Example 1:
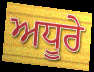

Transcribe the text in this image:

ਅਧੂਰੇ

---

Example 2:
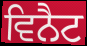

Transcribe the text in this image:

ਵਿਨੈਟ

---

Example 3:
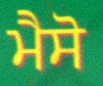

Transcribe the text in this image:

ਮੈਸੋ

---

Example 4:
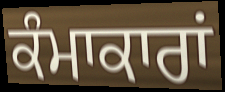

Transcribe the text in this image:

ਕੰਮਾਕਾਰਾਂ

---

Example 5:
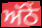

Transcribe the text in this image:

ਅੱਠੇਂ